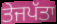
ਤੇਜਪੱਤਾ